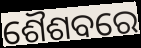
ଶୈଶବରେ